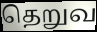
தெறுவ